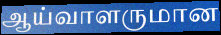
ஆய்வாளருமான